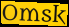
Omsk